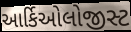
આર્કિઓલોજીસ્ટ